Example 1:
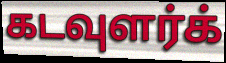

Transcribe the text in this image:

கடவுளர்க்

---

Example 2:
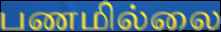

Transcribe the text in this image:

பணமில்லை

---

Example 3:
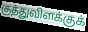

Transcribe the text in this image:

குத்துவிளக்குக்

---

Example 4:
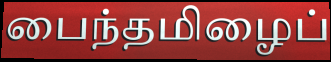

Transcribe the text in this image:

பைந்தமிழைப்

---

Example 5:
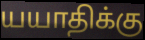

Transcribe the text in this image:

யயாதிக்கு